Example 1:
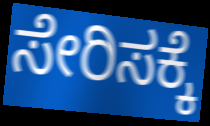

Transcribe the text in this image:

ಸೇರಿಸಕ್ಕೆ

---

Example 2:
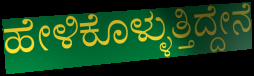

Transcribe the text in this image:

ಹೇಳಿಕೊಳ್ಳುತ್ತಿದ್ದೇನೆ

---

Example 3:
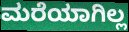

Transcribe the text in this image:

ಮರೆಯಾಗಿಲ್ಲ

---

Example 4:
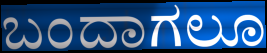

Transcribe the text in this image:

ಬಂದಾಗಲೂ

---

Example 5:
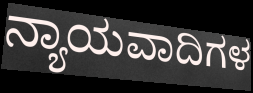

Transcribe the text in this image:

ನ್ಯಾಯವಾದಿಗಳ